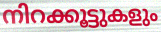
നിറക്കൂട്ടുകളും